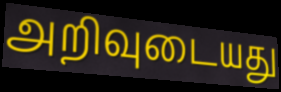
அறிவுடையது